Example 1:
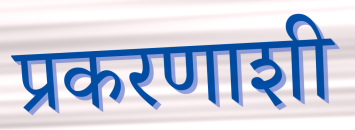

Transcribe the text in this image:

प्रकरणाशी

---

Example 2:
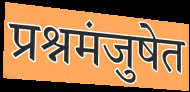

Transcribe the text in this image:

प्रश्नमंजुषेत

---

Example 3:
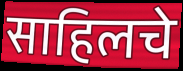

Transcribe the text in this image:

साहिलचे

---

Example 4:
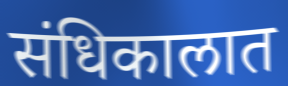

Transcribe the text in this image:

संधिकालात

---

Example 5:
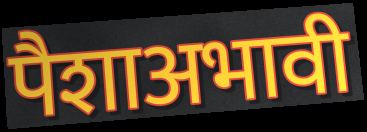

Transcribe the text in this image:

पैशाअभावी